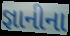
જ્ઞાનીના